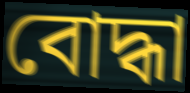
বোদ্ধা